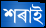
শৰাই